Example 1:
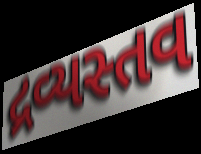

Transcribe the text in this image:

દ્રવ્યસ્તવ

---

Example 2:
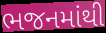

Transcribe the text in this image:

ભજનમાંથી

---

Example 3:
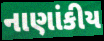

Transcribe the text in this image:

નાણાંકીય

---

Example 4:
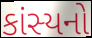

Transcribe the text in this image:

કાંસ્યનો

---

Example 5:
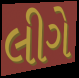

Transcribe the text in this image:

લીગે